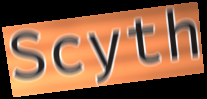
Scyth